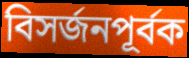
বিসর্জনপূর্বক